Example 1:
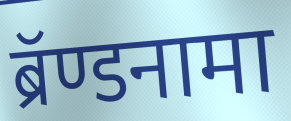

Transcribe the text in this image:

ब्रॅण्डनामा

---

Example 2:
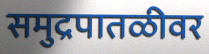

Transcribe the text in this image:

समुद्रपातळीवर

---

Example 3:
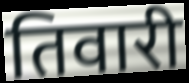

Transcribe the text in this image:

तिवारी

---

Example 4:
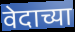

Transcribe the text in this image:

वेदाच्या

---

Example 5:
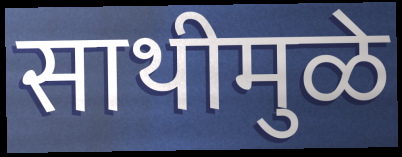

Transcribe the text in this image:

साथीमुळे